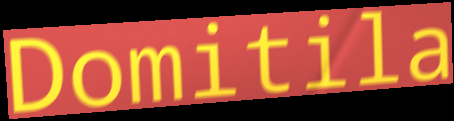
Domitila